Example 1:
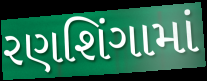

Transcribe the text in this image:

રણશિંગામાં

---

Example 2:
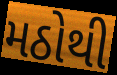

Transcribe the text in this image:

મઠોથી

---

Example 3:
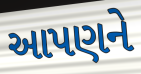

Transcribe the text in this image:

આપણને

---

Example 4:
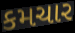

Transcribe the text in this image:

કમચાર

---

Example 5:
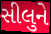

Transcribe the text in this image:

સીલુને